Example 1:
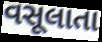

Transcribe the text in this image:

વસૂલાતા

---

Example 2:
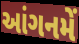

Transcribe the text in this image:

આંગનમેં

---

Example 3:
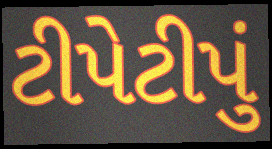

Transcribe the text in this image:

ટીપેટીપું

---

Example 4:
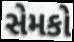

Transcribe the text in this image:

સેમકો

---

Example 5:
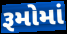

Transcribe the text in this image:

રૂમોમાં